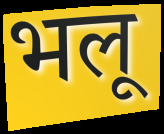
भलू